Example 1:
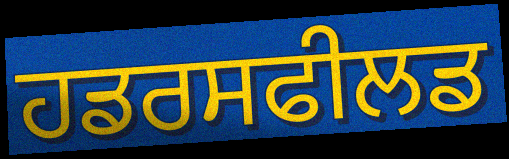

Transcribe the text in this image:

ਹਡਰਸਫੀਲਡ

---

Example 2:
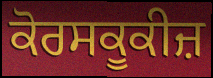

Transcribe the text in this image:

ਕੋਰਸਕੂਕੀਜ਼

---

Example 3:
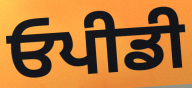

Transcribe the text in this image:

ਓਪੀਡੀ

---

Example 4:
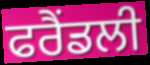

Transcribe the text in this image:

ਫਰੈਂਡਲੀ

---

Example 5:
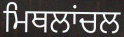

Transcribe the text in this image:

ਮਿਥਲਾਂਚਲ